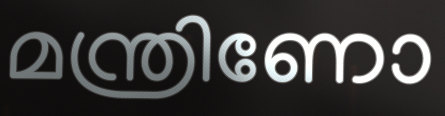
മന്ത്രിണോ